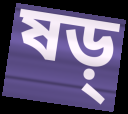
ষড়্